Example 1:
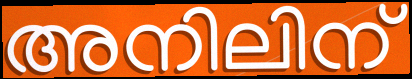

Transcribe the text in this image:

അനിലിന്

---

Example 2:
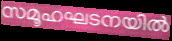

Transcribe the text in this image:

സമൂഹഘടനയിൽ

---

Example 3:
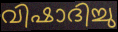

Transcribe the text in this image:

വിഷാദിച്ചു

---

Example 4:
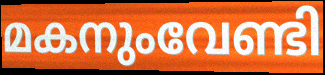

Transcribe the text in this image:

മകനുംവേണ്ടി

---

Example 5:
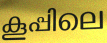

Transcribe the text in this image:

കൂപ്പിലെ